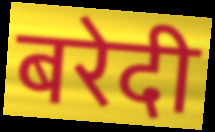
बरेदी